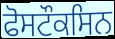
ਫੋਸਟੌਕਸਿਨ